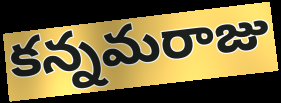
కన్నమరాజు